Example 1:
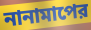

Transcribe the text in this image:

নানামাপের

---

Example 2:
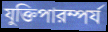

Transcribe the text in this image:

যুক্তিপারম্পর্য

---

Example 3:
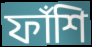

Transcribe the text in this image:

ফাঁশি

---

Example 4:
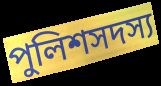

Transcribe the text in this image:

পুলিশসদস্য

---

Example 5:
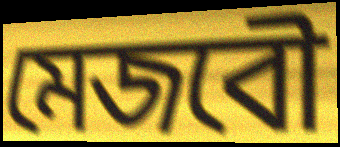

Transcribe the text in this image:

মেজবৌ